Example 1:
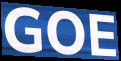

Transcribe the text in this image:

GOE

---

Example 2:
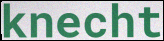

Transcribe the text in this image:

knecht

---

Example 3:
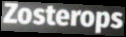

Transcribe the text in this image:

Zosterops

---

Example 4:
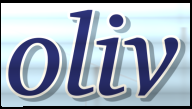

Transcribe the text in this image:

oliv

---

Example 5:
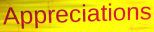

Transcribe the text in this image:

Appreciations